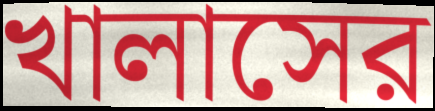
খালাসের